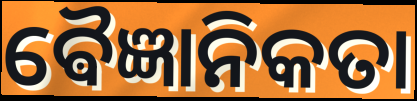
ଵୈଜ୍ଞାନିକତା